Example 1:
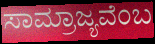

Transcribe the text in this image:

ಸಾಮ್ರಾಜ್ಯವೆಂಬ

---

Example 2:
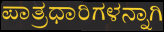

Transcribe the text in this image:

ಪಾತ್ರಧಾರಿಗಳನ್ನಾಗಿ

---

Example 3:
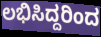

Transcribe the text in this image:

ಲಭಿಸಿದ್ದರಿಂದ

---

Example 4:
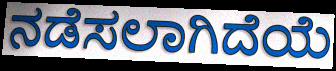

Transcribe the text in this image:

ನಡೆಸಲಾಗಿದೆಯೆ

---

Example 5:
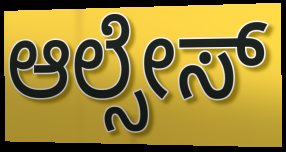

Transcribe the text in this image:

ಆಲ್ಸೇಸ್